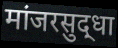
मांजरसुद्धा